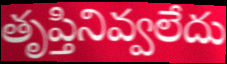
తృప్తినివ్వలేదు